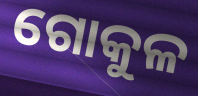
ଗୋକୁଳ